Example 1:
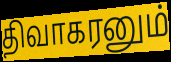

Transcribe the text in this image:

திவாகரனும்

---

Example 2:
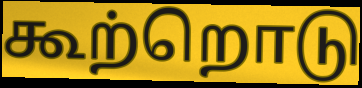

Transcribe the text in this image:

கூற்றொடு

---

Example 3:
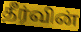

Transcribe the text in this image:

தீர்வின்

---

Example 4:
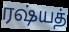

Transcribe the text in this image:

ரஷ்யத்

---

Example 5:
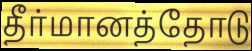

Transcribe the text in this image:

தீர்மானத்தோடு